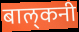
बाल्कनी